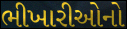
ભીખારીઓનો